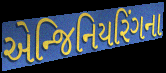
એન્જિનિયરિંગના